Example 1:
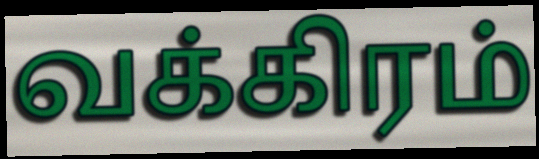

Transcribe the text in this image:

வக்கிரம்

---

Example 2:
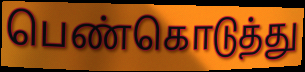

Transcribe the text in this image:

பெண்கொடுத்து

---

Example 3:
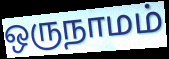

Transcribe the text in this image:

ஒருநாமம்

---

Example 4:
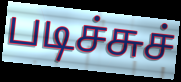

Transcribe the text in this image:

படிச்சுச்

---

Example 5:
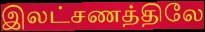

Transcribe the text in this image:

இலட்சணத்திலே